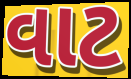
વાટ